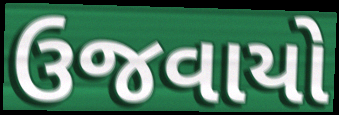
ઉજવાયો